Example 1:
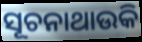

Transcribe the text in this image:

ସୂଚନାଥାଉକି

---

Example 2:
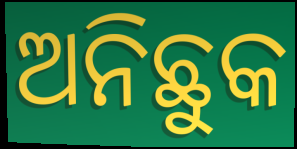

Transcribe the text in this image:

ଅନିଛୁକ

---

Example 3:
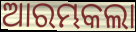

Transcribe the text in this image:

ଆରମ୍ଭକଲା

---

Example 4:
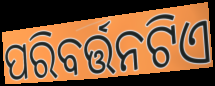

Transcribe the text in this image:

ପରିବର୍ତ୍ତନଟିଏ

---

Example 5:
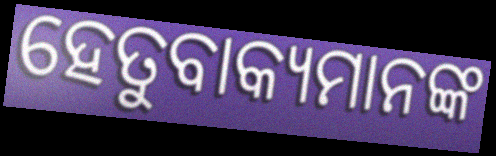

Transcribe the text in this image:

ହେତୁବାକ୍ୟମାନଙ୍କ